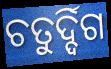
ଚତୁର୍ଦ୍ଦିଗ